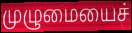
முழுமையைச்